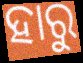
ହାରୁ